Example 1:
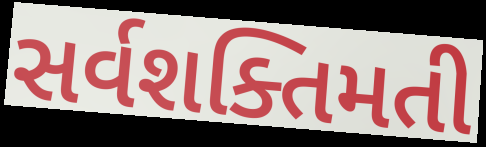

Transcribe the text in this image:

સર્વશક્તિમતી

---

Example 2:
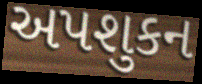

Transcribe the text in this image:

અપશુકન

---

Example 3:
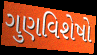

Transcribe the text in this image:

ગુણવિશેષો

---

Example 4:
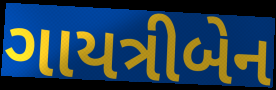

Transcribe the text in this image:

ગાયત્રીબેન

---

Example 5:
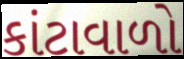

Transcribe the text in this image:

કાંટાવાળો